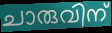
ചാരുവിന്